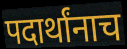
पदार्थांनाच